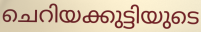
ചെറിയക്കുട്ടിയുടെ